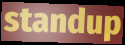
standup